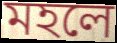
মহলে